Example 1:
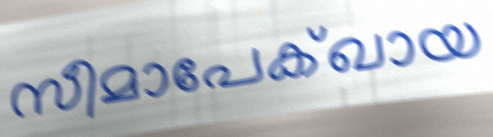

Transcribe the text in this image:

സീമാപേക്ഖായ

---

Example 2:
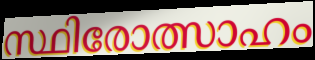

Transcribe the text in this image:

സ്ഥിരോത്സാഹം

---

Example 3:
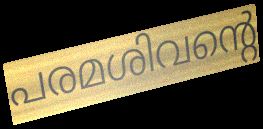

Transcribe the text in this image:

പരമശിവന്റെ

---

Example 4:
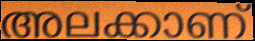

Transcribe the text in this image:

അലക്കാണ്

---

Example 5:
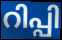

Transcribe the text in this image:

റിപ്പി